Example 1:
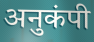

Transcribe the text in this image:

अनुकंपी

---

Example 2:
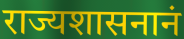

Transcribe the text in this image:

राज्यशासनानं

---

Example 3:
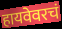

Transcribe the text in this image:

हायवेवरचं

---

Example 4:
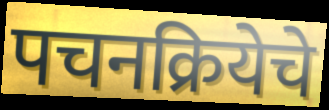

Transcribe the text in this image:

पचनक्रियेचे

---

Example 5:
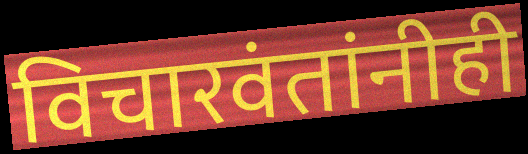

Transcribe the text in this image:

विचारवंतांनीही